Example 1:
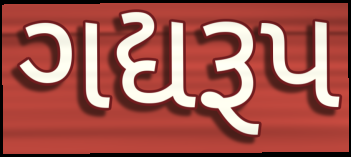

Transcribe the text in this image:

ગદ્યરૂપ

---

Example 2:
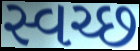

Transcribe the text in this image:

સ્વચ્છ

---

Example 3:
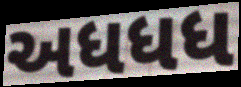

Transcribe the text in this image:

અધધધ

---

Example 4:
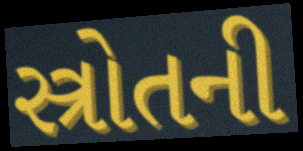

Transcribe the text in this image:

સ્ત્રોતની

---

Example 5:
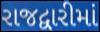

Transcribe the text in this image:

રાજદ્વારીમાં